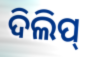
ଦିଲିପ୍